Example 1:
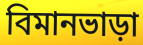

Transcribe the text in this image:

বিমানভাড়া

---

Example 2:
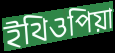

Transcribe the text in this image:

ইথিওপিয়া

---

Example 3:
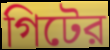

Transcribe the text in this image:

গিটের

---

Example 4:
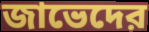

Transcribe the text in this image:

জাভেদের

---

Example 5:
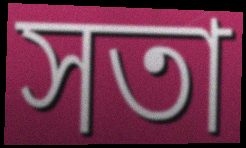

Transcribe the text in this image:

সতা